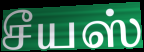
சீயஸ்